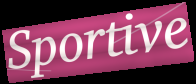
Sportive